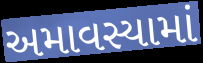
અમાવસ્યામાં